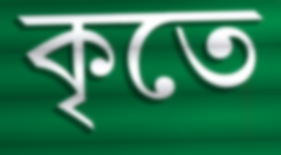
কৃতে